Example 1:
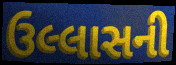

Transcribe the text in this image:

ઉલ્લાસની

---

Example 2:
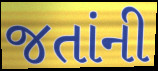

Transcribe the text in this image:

જતાંની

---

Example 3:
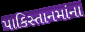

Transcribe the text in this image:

પાકિસ્તાનમાંના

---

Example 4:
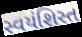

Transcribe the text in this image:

સ્વયંશિસ્ત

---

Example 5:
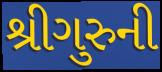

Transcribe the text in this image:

શ્રીગુરુની